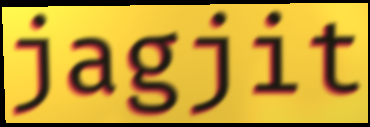
jagjit